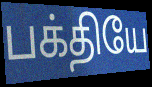
பக்தியே